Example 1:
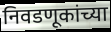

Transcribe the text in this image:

निवडणूकांच्या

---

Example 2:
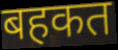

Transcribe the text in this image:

बहकत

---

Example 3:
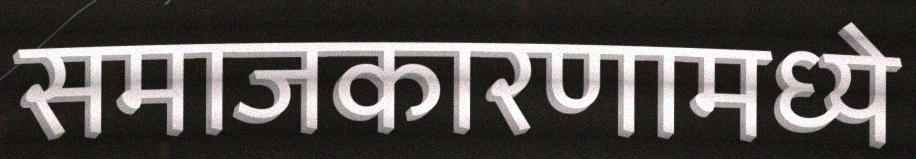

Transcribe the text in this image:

समाजकारणामध्ये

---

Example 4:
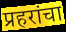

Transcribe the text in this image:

प्रहरांचा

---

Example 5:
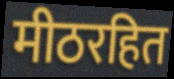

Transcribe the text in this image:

मीठरहित